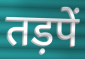
तड़पें